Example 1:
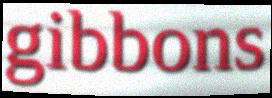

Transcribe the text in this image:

gibbons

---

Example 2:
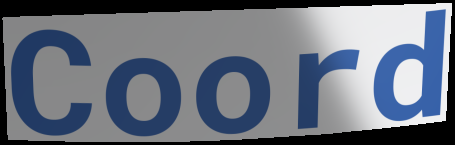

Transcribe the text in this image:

Coord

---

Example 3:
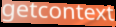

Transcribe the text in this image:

getcontext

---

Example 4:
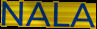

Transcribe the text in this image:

NALA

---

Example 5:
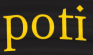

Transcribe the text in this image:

poti